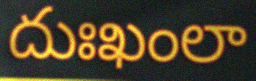
దుఃఖంలా